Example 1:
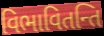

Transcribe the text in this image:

વિભાવિતન્તિ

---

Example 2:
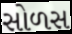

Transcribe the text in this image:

સોળસ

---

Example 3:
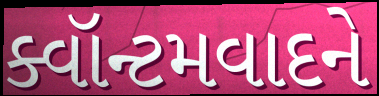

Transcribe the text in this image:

ક્વૉન્ટમવાદને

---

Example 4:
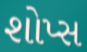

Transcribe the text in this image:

શોપ્સ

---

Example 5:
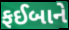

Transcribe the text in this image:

ફઈબાને